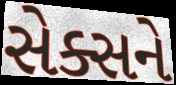
સેક્સને